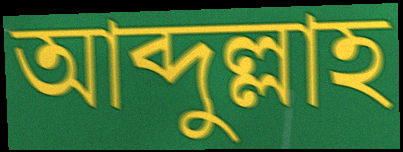
আব্দুল্লাহ